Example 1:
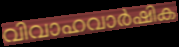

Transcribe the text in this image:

വിവാഹവാർഷിക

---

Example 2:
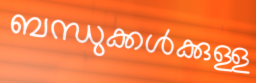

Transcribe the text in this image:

ബന്ധുക്കൾക്കുള്ള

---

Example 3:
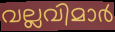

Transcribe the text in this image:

വല്ലവിമാർ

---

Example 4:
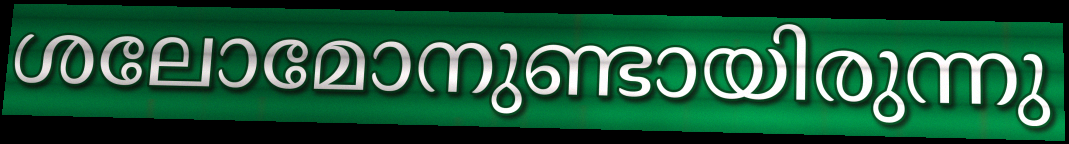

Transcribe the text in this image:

ശലോമോനുണ്ടായിരുന്നു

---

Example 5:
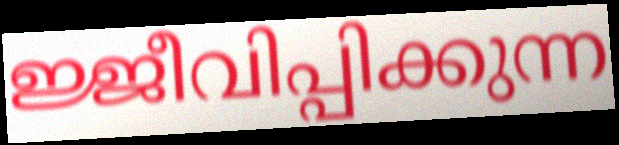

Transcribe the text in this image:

ജ്ജീവിപ്പിക്കുന്ന